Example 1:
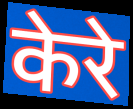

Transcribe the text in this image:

केरे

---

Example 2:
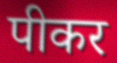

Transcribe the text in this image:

पीकर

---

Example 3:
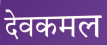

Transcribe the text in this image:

देवकमल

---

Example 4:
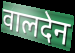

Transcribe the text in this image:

वालदेन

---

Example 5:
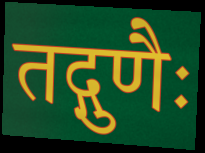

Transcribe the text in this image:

तद्गुणैः